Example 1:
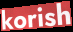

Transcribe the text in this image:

korish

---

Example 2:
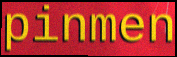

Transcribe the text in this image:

pinmen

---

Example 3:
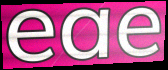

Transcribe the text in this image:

eae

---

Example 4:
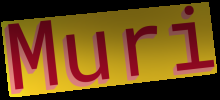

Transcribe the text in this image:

Muri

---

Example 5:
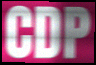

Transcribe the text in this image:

CDP